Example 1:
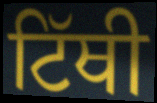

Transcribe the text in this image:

ਟਿੱਥੀ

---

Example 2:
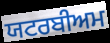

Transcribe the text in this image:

ਯਟਰਬੀਅਮ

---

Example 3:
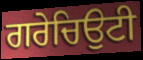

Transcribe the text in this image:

ਗਰੇਚਿਉਟੀ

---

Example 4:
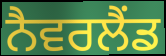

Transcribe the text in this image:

ਨੈਵਰਲੈਂਡ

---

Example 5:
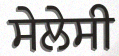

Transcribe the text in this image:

ਸੇਲੇਸੀ